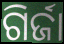
ଗିର୍ଜା